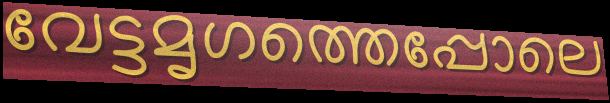
വേട്ടമൃഗത്തെപ്പോലെ